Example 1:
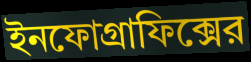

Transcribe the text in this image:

ইনফোগ্রাফিক্সের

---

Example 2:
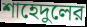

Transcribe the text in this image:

শাহেদুলের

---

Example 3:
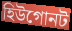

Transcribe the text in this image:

হিউগোনট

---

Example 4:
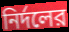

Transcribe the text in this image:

নির্দলের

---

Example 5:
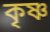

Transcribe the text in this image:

কৃষ্ণ